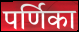
पर्णिका